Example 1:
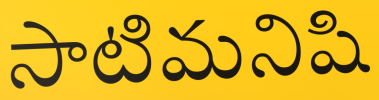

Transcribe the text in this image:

సాటిమనిషి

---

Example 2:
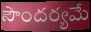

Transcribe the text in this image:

సౌందర్యమే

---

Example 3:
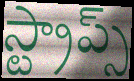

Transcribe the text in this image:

స్ట్రాప్స్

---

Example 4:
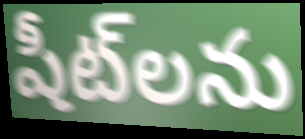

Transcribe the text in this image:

షీట్‌లను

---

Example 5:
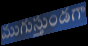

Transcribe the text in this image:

ముగుస్తుండగా